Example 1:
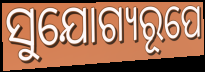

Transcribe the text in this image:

ସୁଯୋଗ୍ୟରୂପେ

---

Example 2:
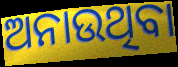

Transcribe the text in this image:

ଅନାଉଥିବା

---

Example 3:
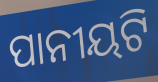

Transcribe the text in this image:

ପାନୀୟଟି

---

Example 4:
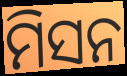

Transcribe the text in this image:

ମିସନ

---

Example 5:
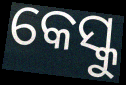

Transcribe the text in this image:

କେସ୍କୁ